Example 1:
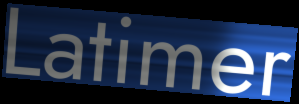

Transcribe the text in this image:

Latimer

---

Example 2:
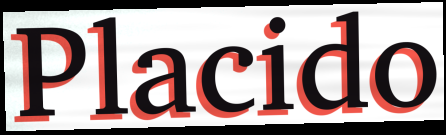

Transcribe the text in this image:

Placido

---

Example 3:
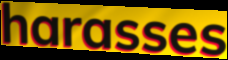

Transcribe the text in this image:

harasses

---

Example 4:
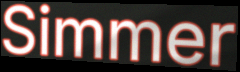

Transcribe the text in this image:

Simmer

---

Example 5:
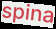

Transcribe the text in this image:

spina